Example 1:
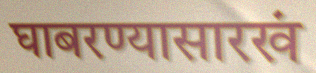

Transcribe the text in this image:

घाबरण्यासारखं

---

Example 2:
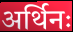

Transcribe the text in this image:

अर्थिनः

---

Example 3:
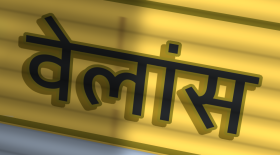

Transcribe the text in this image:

वेलांस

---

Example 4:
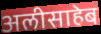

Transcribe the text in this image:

अलीसाहेब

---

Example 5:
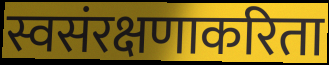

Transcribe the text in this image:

स्वसंरक्षणाकरिता